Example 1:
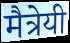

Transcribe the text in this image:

मैत्रेयी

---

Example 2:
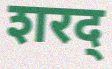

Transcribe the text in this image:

शरद्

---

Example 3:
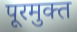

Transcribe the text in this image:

पूरमुक्त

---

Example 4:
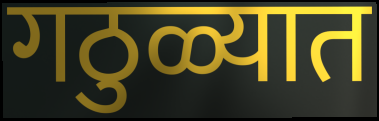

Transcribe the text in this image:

गठुळ्यात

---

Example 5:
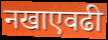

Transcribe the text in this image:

नखाएवढी